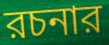
রচনার